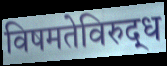
विषमतेविरुद्ध